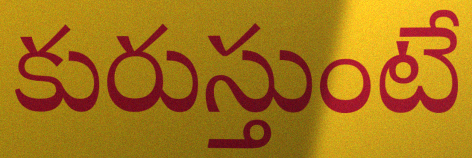
కురుస్తుంటే